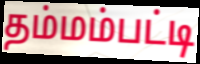
தம்மம்பட்டி